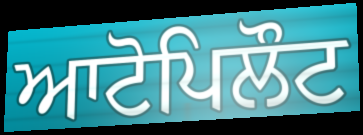
ਆਟੋਪਿਲੌਟ